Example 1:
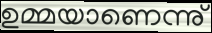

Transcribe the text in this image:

ഉമ്മയാണെന്നു്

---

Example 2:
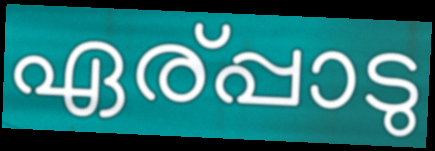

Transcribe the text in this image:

ഏര്പ്പാടു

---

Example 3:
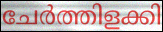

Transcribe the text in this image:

ചേർത്തിളക്കി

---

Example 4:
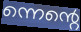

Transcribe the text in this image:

ന്നെന്റെ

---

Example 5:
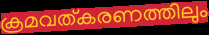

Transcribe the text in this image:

ക്രമവത്കരണത്തിലും